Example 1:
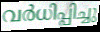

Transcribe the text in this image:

വർധിപ്പിച്ചു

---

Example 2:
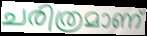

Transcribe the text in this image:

ചരിത്രമാണ്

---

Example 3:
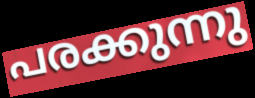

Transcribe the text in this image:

പരക്കുന്നു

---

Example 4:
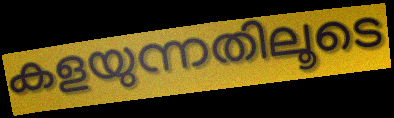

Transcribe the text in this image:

കളയുന്നതിലൂടെ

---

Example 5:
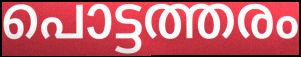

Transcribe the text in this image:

പൊട്ടത്തരം